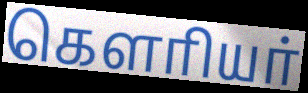
கௌரியர்